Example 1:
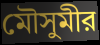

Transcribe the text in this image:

মৌসুমীর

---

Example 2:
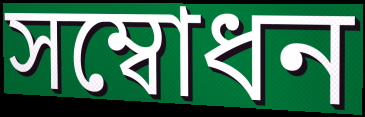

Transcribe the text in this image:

সম্বোধন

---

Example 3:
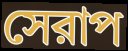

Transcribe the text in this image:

সেরাপ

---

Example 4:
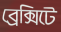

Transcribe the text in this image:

ব্রেক্সিটে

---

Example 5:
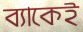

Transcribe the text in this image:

ব্যাকেই